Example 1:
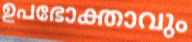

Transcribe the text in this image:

ഉപഭോക്താവും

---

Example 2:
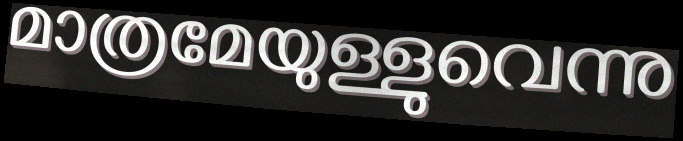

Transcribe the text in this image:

മാത്രമേയുള്ളുവെന്നു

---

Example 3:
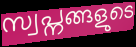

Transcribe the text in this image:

സ്വപ്നങ്ങളുടെ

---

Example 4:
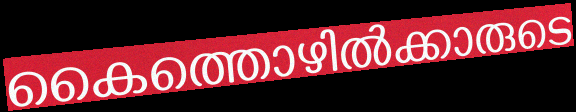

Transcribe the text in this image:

കൈത്തൊഴിൽക്കാരുടെ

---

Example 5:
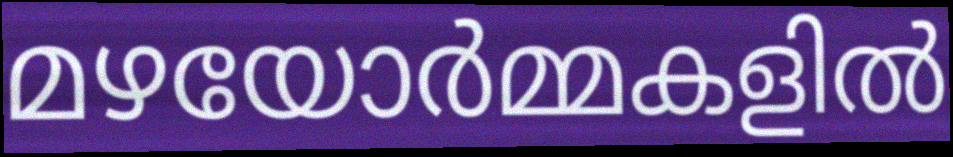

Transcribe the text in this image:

മഴയോർമ്മകളിൽ